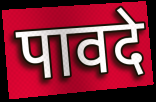
पावदे